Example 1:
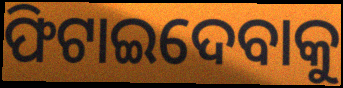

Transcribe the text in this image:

ଫିଟାଇଦେବାକୁ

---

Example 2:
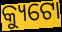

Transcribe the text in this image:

କ୍ୟୁଟୋ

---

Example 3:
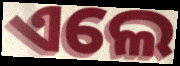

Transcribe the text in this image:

ଏଲେ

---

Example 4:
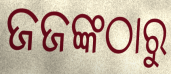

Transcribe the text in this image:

ଜଜଙ୍କଠାରୁ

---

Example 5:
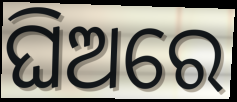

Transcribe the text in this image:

ଘିଅରେ